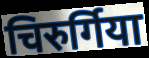
चिरुर्गिया